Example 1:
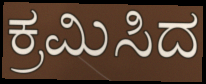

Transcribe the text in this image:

ಕ್ರಮಿಸಿದ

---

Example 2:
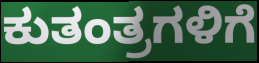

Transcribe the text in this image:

ಕುತಂತ್ರಗಳಿಗೆ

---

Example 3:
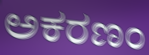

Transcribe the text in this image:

ಅಕರಣಂ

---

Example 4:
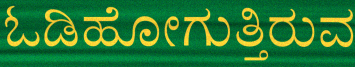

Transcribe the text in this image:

ಓಡಿಹೋಗುತ್ತಿರುವ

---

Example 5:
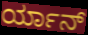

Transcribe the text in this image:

ರ್ಯಾನ್